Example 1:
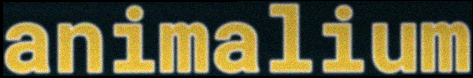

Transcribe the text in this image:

animalium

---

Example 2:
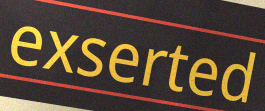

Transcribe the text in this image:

exserted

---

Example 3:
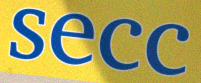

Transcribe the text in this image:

secc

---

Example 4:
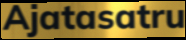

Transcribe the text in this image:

Ajatasatru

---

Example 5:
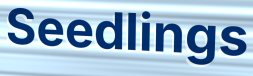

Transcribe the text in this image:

Seedlings